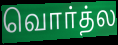
வொர்த்ல